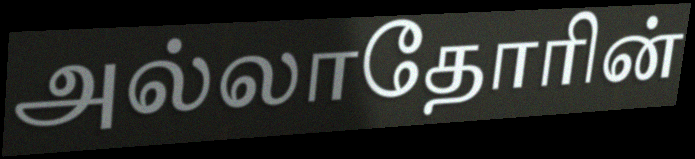
அல்லாதோரின்